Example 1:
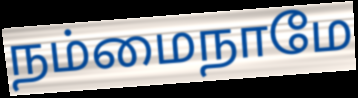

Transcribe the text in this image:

நம்மைநாமே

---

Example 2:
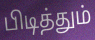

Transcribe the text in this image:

பிடித்தும்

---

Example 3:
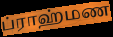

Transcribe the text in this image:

ப்ராஹ்மண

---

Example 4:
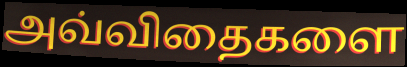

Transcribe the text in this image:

அவ்விதைகளை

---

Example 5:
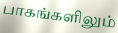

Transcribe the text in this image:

பாகங்களிலும்